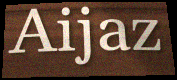
Aijaz